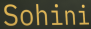
Sohini